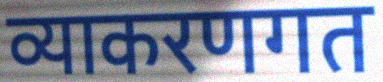
व्याकरणगत